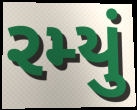
રમ્યું